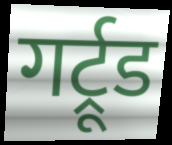
गर्ट्रूड